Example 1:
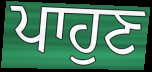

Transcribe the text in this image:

ਪਾਹੁਣ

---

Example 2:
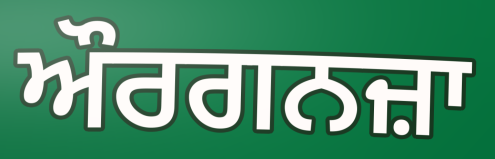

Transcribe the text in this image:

ਔਰਗਨਜ਼ਾ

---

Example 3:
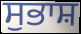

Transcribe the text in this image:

ਸੁਭਾਸ਼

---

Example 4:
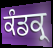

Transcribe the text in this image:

ਕੰਡਕ੍ਰ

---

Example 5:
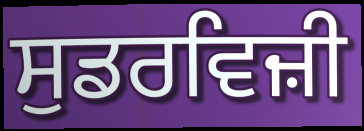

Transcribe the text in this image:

ਸੁਡਰਵਿਜ਼ੀ